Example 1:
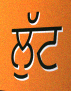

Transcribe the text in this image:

ਲੁੱਟ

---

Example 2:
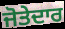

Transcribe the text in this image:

ਜੋਤੇਦਾਰ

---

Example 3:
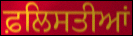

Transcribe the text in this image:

ਫ਼ਲਿਸਤੀਆਂ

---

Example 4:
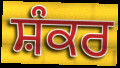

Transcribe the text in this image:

ਸ਼ੰਕਰ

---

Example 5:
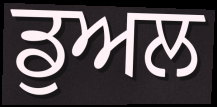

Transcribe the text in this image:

ਡੁਅਲ